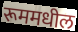
रूममधील